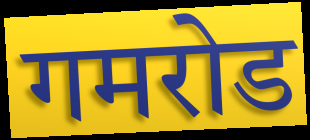
गमरोड